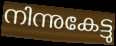
നിന്നുകേട്ടു